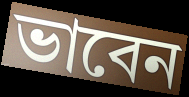
ভাবেন